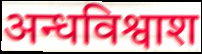
अन्धविश्वाश